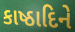
કાષ્ઠાદિને